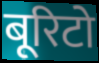
बूरिटो